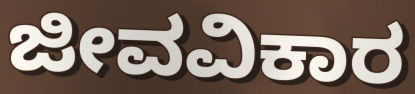
ಜೀವವಿಕಾರ